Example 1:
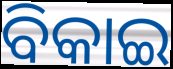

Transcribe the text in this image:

ବିକାଇ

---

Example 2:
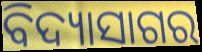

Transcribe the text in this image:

ବିଦ୍ୟାସାଗର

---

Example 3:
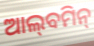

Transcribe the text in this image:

ଆଲ୍‌ବମିନ୍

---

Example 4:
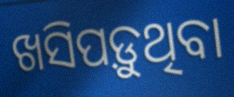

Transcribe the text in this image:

ଖସିପଡ଼ୁଥିବା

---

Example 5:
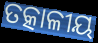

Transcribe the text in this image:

ତତ୍କାଳୀୟ